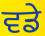
ਵਡੇ